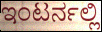
ಇಂಟರ್ನಲ್ಲಿ